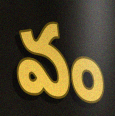
వం